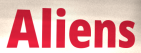
Aliens